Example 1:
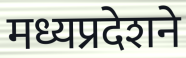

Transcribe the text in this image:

मध्यप्रदेशने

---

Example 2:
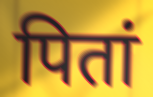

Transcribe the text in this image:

पितां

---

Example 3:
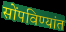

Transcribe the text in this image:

सोंपविण्यांत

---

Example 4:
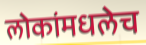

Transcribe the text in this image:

लोकांमधलेच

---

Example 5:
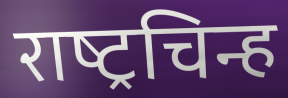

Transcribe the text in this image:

राष्ट्रचिन्ह